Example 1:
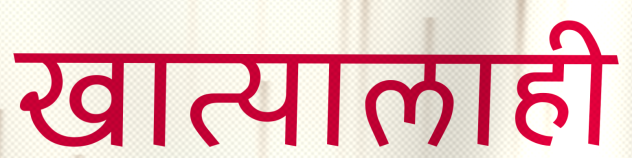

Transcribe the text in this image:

खात्यालाही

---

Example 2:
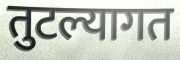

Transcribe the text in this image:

तुटल्यागत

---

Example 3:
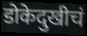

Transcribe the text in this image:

डोकेदुखीचं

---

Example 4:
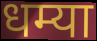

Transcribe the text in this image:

धम्या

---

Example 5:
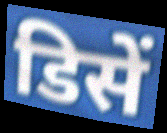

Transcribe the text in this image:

डिसें